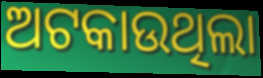
ଅଟକାଉଥିଲା